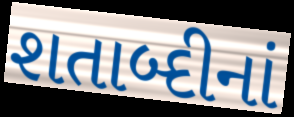
શતાબ્દીનાં